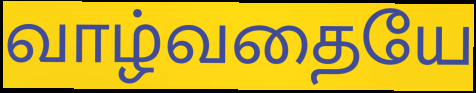
வாழ்வதையே